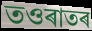
তওৰাতৰ